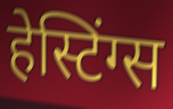
हेस्टिंग्स